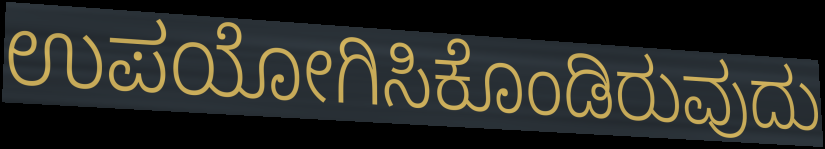
ಉಪಯೋಗಿಸಿಕೊಂಡಿರುವುದು